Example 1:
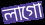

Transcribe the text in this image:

লাগো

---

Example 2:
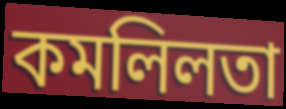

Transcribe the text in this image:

কমলিলতা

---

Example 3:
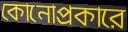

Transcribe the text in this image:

কোনোপ্রকারে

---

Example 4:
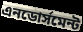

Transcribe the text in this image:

এনডোর্সমেন্ট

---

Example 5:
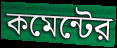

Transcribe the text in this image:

কমেন্টের